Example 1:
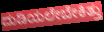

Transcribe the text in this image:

ದುಡಿಯಲೇಬೇಕಿತ್ತು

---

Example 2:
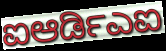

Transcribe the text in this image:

ಐಆರ್ಡಿಎಐ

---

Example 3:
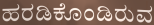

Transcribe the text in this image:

ಹರಡಿಕೊಂಡಿರುವ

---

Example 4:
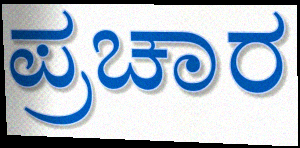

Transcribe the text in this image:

ಪ್ರಚಾರ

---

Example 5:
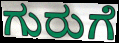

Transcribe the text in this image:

ಗುರುಗೆ